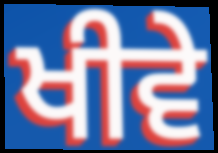
ਖੀਵੇ